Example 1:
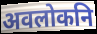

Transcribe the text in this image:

अवलोकनि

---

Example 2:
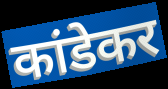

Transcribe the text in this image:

कांडेकर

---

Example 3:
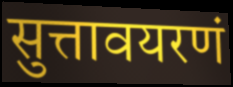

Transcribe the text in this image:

सुत्तावयरणं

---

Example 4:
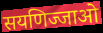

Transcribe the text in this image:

सयणिज्जाओ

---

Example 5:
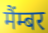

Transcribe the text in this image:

मैंम्बर